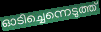
ഓടിച്ചെന്നെടുത്ത്